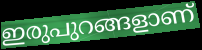
ഇരുപുറങ്ങളാണ്